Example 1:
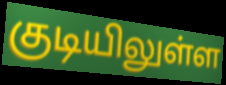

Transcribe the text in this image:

குடியிலுள்ள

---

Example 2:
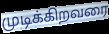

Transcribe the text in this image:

முடிக்கிறவரை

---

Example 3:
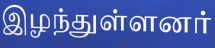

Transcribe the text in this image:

இழந்துள்ளனர்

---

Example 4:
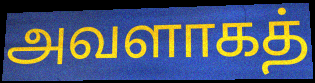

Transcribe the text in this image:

அவளாகத்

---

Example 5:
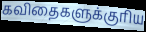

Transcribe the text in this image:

கவிதைகளுக்குரிய